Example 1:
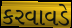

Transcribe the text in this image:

કરવાવડે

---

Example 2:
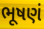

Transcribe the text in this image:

ભૂષણં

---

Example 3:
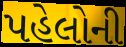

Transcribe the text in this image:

પહેલોની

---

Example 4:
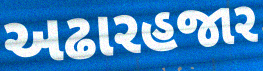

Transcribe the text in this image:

અઢારહજાર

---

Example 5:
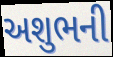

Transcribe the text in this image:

અશુભની